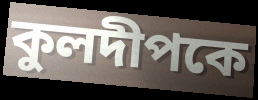
কুলদীপকে